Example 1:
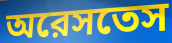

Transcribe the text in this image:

অরেসতেস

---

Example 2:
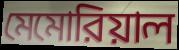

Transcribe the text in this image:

মেমোরিয়াল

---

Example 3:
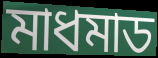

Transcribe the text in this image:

মাধমাড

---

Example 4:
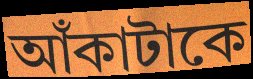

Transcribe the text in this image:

আঁকাটাকে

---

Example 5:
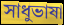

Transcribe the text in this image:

সাধুভাষা